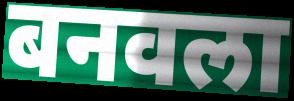
बनवला